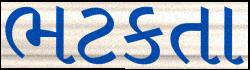
ભટકતા